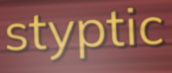
styptic